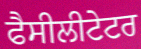
ਫੈਸੀਲੀਟੇਟਰ